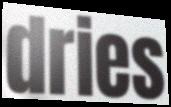
dries